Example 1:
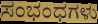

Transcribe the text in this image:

ಸಂಭಂಧಗಳು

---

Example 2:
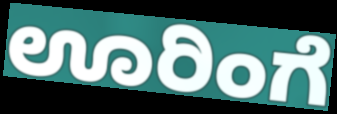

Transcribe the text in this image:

ಊರಿಂಗೆ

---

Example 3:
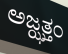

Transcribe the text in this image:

ಅಜ್ಝತ್ತಂ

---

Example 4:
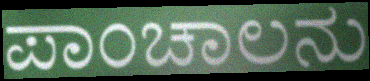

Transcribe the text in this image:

ಪಾಂಚಾಲನು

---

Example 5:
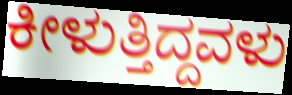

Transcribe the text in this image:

ಕೀಳುತ್ತಿದ್ದವಳು